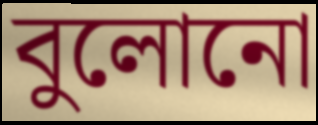
বুলোনো